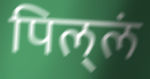
पिल्लं